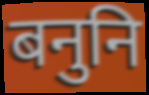
बनुनि